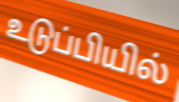
உடுப்பியில்